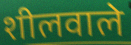
शीलवाले